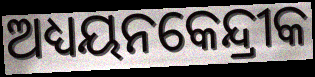
ଅଧ୍ୟୟନକେନ୍ଦ୍ରୀକ